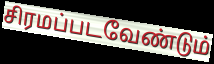
சிரமப்படவேண்டும்